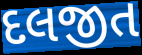
દલજીત